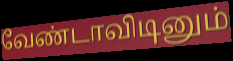
வேண்டாவிடினும்